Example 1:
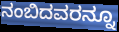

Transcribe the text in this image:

ನಂಬಿದವರನ್ನೂ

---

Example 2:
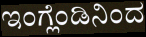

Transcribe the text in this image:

ಇಂಗ್ಲೆಂಡಿನಿಂದ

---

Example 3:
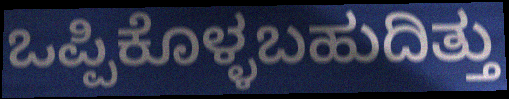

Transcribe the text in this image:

ಒಪ್ಪಿಕೊಳ್ಳಬಹುದಿತ್ತು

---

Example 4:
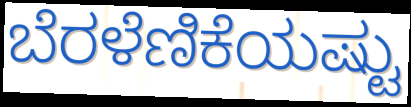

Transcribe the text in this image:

ಬೆರಳೆಣಿಕೆಯಷ್ಟು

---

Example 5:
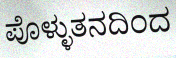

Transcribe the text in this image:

ಪೊಳ್ಳುತನದಿಂದ